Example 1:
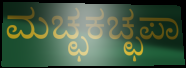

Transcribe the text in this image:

ಮಚ್ಛಕಚ್ಛಪಾ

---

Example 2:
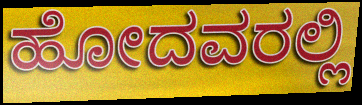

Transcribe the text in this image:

ಹೋದವರಲ್ಲಿ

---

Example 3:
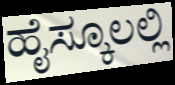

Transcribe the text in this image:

ಹೈಸ್ಕೂಲಲ್ಲಿ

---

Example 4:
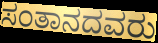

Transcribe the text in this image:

ಸಂತಾನದವರು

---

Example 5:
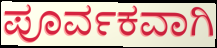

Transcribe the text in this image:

ಪೂರ್ವಕವಾಗಿ